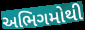
અભિગમોથી